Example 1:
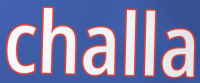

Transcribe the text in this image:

challa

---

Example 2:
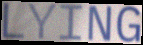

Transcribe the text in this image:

LYING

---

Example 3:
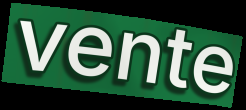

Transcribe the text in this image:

vente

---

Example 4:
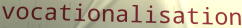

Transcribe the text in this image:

vocationalisation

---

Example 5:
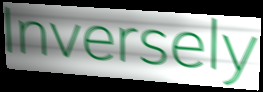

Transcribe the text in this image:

Inversely